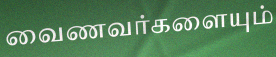
வைணவர்களையும்